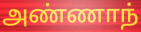
அண்ணாந்